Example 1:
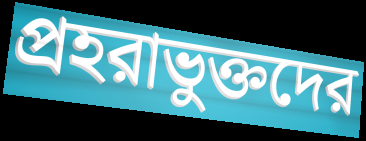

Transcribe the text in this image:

প্রহরাভুক্তদের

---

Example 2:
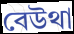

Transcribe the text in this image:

বেউথা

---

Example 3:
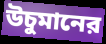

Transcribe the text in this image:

উচুমানের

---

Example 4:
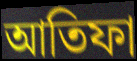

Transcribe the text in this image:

আতিফা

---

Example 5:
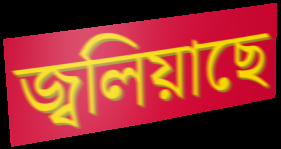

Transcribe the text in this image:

জ্বলিয়াছে